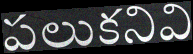
పలుకనివి